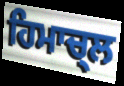
ਹਿਮਾਚ੍ਲ